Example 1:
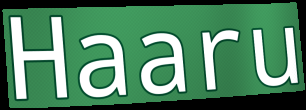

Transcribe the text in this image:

Haaru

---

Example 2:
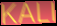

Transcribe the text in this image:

KALI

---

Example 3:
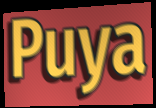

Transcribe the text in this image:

Puya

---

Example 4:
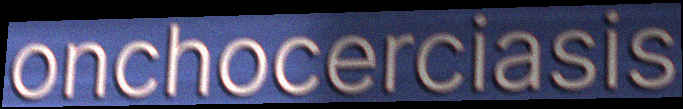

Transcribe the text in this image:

onchocerciasis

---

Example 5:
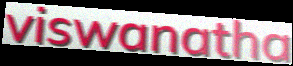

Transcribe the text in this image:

viswanatha